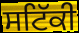
ਸਟਿੱਕੀ